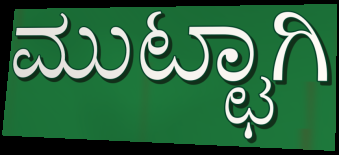
ಮುಟ್ಟಾಗಿ